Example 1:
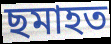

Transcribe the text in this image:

ছমাহত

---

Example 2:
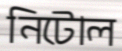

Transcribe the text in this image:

নিটোল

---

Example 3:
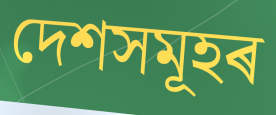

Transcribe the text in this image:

দেশসমূহৰ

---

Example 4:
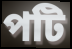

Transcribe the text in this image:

পটি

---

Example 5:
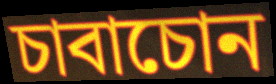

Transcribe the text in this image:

চাবাচোন